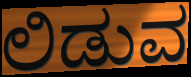
ಲಿಡುವ